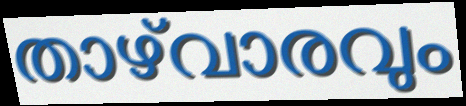
താഴ്‌വാരവും